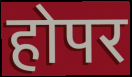
होपर